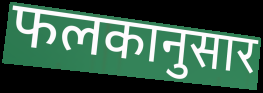
फलकानुसार